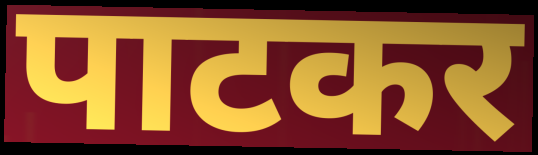
पाटकर